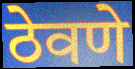
ठेवणे